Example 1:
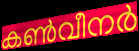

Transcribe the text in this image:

കൺവീനർ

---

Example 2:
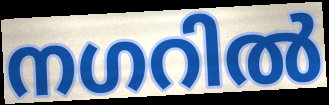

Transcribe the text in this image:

നഗറിൽ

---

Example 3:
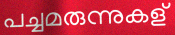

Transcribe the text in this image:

പച്ചമരുന്നുകള്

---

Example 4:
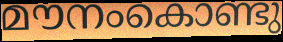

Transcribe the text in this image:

മൗനംകൊണ്ടു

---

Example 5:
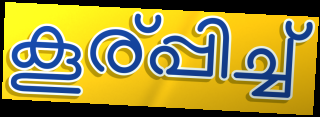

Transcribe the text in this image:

കൂര്പ്പിച്ച്